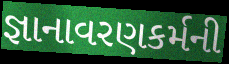
જ્ઞાનાવરણકર્મની